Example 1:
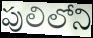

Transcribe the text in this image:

పులిలోని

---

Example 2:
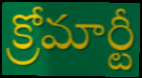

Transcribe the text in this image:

క్రోమార్టీ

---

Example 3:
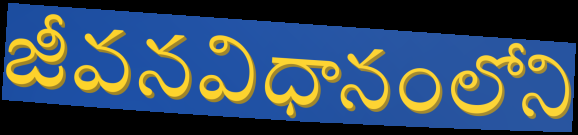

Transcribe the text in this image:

జీవనవిధానంలోని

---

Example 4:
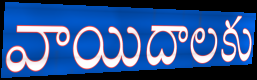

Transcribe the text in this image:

వాయిదాలకు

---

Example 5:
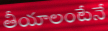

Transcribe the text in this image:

తీయాలంటేనే